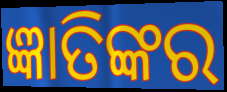
ଜ୍ଞାତିଙ୍କର